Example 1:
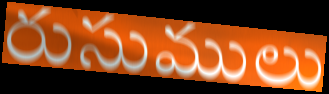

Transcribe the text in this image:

రుసుములు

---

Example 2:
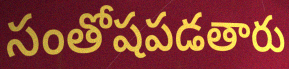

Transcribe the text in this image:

సంతోషపడతారు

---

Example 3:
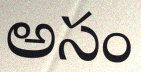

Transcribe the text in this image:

అసం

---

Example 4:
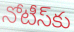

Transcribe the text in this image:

నోటీస్‌కు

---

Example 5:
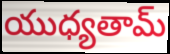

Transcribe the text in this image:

యుధ్యతామ్